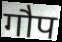
गौप